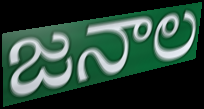
జనాల